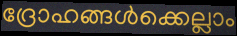
ദ്രോഹങ്ങൾക്കെല്ലാം